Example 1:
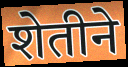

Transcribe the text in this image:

शेतीने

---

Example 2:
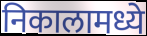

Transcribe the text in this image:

निकालामध्ये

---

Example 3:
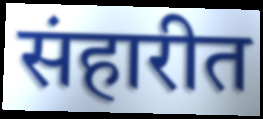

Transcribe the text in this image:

संहारीत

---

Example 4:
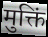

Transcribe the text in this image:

मुक्तिं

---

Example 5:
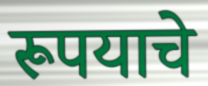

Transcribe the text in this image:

रूपयाचे